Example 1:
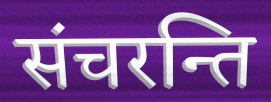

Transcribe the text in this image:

संचरन्ति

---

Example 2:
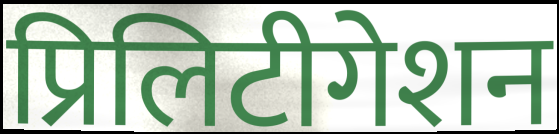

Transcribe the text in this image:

प्रिलिटीगेशन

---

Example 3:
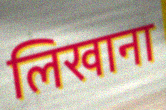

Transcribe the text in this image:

लिखाना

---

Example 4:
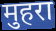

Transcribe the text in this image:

मुहरा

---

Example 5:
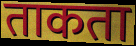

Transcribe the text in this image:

ताकता